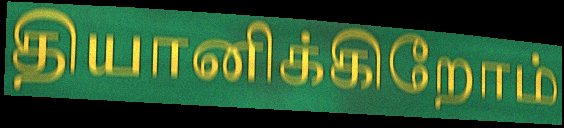
தியானிக்கிறோம்